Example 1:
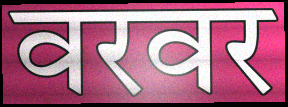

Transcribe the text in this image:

वरवर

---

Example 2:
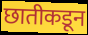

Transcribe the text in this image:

छातीकडून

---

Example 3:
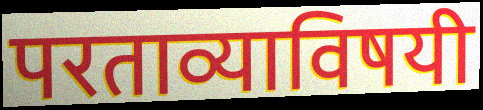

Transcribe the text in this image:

परताव्याविषयी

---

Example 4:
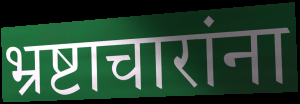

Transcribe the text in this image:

भ्रष्टाचारांना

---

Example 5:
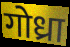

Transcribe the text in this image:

गोध्रा